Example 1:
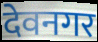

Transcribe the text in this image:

देवनगर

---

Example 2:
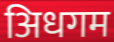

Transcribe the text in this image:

अिधगम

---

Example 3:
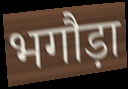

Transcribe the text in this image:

भगौड़ा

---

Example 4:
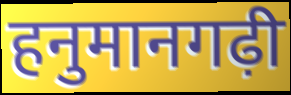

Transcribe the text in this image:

हनुमानगढ़ी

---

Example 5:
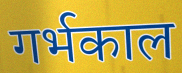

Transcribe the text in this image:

गर्भकाल